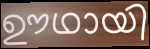
ഊഥായി